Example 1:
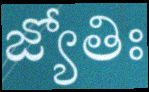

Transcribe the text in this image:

జ్యోతిః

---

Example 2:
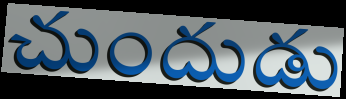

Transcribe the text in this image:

చుందుడు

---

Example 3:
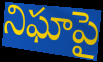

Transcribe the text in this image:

నిఘాపై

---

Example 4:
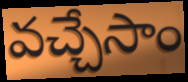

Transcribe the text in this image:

వచ్చేసాం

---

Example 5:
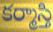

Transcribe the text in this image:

కర్మాస్తి